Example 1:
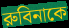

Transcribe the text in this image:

রুবিনাকে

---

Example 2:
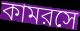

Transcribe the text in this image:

কামরসে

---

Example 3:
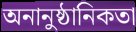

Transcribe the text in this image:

অনানুষ্ঠানিকতা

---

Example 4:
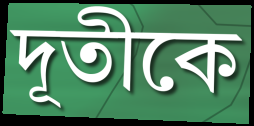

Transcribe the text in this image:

দূতীকে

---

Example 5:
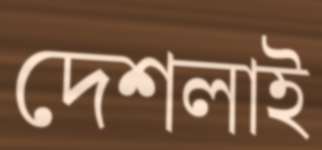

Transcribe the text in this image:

দেশলাই